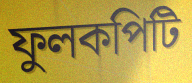
ফুলকপিটি